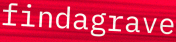
findagrave